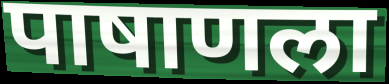
पाषाणला